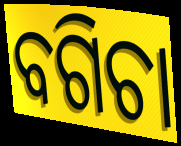
ବଗିଚା